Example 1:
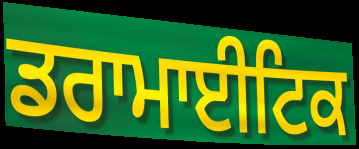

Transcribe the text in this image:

ਡਰਾਮਾਈਟਿਕ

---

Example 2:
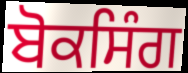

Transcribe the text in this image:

ਬੋਕਸਿੰਗ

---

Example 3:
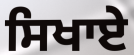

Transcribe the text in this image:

ਸਿਖਾਏੇ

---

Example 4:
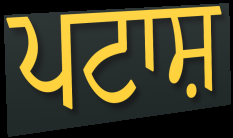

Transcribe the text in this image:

ਪਟਾਸ਼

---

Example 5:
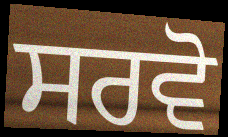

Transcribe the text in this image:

ਸਰਵੋ